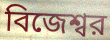
বিজেশ্বর